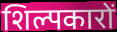
शिल्पकारों